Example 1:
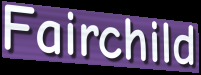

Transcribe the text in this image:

Fairchild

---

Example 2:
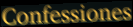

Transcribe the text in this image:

Confessiones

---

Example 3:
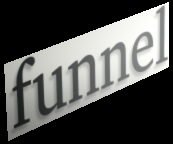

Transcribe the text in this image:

funnel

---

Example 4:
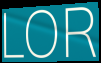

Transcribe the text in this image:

LOR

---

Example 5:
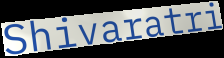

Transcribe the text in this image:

Shivaratri